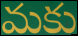
మకు